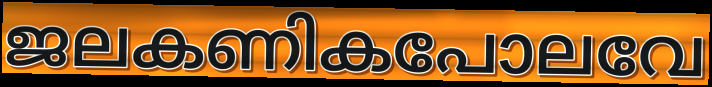
ജലകണികപോലവേ